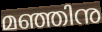
മഞ്ഞിനു